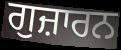
ਗੁਜ਼ਾਰਨ